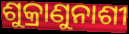
ଶୁକ୍ରାଣୁନାଶୀ